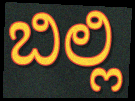
ಬಿಲ್ಲಿ